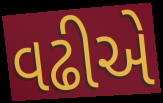
વઢીએ